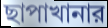
ছাপাখানার